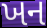
ખન